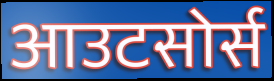
आउटसोर्स